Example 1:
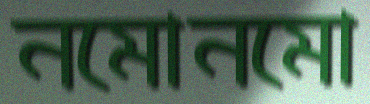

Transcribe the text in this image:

নমোনমো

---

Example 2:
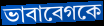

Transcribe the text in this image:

ভাবাবেগকে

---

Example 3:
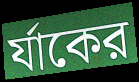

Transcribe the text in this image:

র্যাকের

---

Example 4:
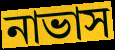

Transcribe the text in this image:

নাভাস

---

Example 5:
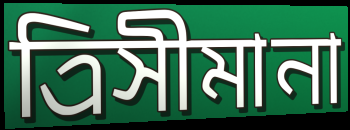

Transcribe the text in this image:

ত্রিসীমানা